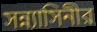
সন্ন্যাসিনীর